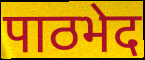
पाठभेद